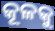
କୂଳକୁ